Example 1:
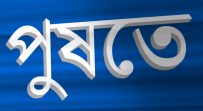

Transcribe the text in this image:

পুষতে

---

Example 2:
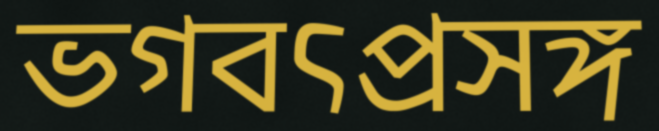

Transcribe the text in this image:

ভগবৎপ্রসঙ্গ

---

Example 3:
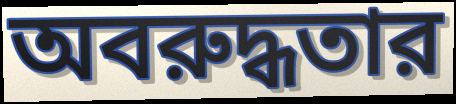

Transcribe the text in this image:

অবরুদ্ধতার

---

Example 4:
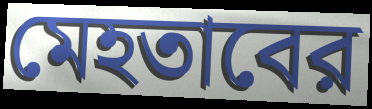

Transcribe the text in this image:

মেহতাবের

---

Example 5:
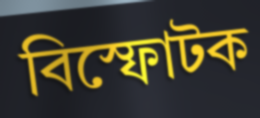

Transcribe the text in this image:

বিস্ফোটক